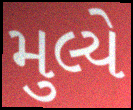
મુલ્યે